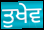
ਤੁਖੇਵ